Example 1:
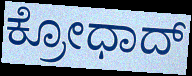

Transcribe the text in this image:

ಕ್ರೋಧಾದ್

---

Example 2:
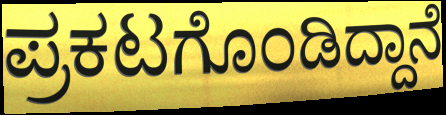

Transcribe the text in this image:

ಪ್ರಕಟಗೊಂಡಿದ್ದಾನೆ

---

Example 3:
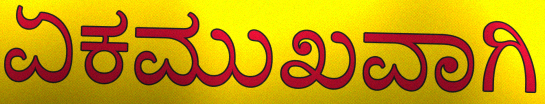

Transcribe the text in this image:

ಏಕಮುಖವಾಗಿ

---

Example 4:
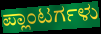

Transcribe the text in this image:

ಪ್ಲಾಂಟರ್ಗಳು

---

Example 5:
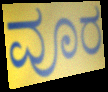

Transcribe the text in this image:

ವೂರ